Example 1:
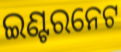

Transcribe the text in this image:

ଇଣ୍ଟରନେଟ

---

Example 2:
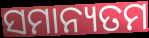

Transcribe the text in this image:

ସମାନ୍ୟତମ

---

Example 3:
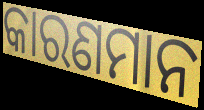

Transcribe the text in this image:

କାରଣମାନ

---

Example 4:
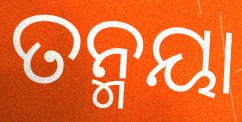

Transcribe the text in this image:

ତନ୍ମୟା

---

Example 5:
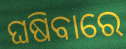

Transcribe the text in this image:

ଘଷିବାରେ